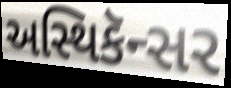
અસ્થિકૅન્સર